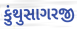
કુંથુસાગરજી